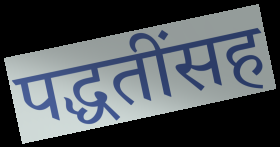
पद्धतींसह